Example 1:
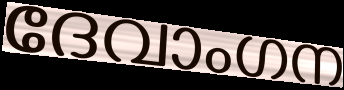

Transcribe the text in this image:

ദേവാംഗന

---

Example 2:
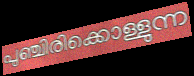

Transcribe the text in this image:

പുഞ്ചിരിക്കൊള്ളുന്ന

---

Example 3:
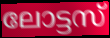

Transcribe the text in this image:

ലോട്ടസ്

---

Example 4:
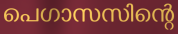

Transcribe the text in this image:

പെഗാസസിന്റെ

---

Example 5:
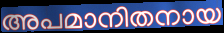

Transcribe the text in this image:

അപമാനിതനായ